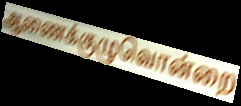
ஆணைக்குழுவொன்றை